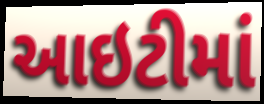
આઇટીમાં